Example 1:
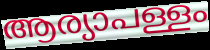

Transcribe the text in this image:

ആര്യാപള്ളം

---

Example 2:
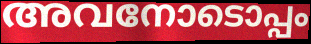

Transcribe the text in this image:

അവനോടൊപ്പം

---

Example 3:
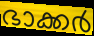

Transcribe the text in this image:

ഭാക്കർ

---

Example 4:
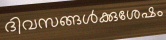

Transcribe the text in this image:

ദിവസങ്ങൾക്കുശേഷം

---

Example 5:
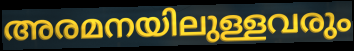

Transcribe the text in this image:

അരമനയിലുള്ളവരും